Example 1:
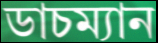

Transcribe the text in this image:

ডাচম্যান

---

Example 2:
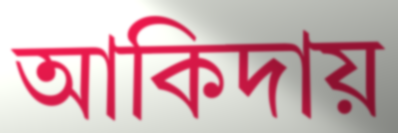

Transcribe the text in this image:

আকিদায়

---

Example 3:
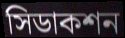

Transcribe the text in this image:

সিডাকশন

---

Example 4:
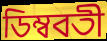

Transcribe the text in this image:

ডিম্ববতী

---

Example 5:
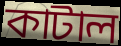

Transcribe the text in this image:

কাটাল